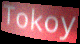
Tokoy